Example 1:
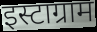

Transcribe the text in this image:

इस्टाग्राम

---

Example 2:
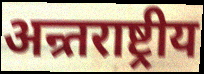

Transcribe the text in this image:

अन्र्तराष्ट्रीय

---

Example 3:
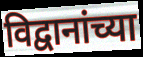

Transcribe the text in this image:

विद्वानांच्या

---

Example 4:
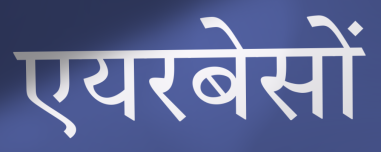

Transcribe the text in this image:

एयरबेसों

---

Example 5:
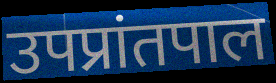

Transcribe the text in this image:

उपप्रांतपाल